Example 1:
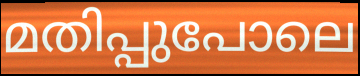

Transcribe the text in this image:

മതിപ്പുപോലെ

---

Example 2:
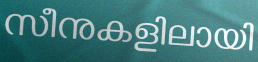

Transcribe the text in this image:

സീനുകളിലായി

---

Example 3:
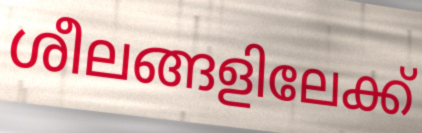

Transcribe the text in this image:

ശീലങ്ങളിലേക്ക്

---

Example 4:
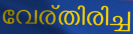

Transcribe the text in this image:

വേര്തിരിച്ച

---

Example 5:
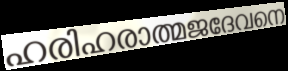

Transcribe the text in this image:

ഹരിഹരാത്മജദേവനെ